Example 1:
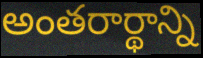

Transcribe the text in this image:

అంతరార్థాన్ని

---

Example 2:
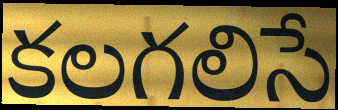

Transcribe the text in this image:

కలగలిసే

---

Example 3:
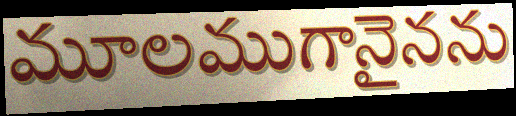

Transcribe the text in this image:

మూలముగానైనను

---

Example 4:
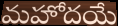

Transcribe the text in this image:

మహోదయే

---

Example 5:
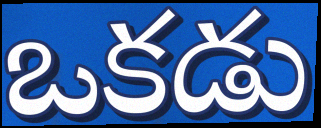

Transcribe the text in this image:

ఒకడు